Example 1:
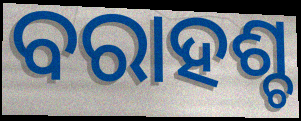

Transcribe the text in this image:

ବରାହଶ୍ଚ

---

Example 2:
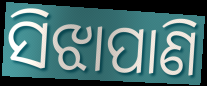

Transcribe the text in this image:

ସିଝାପାଣି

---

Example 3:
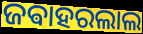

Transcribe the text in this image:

ଜଵାହରଲାଲ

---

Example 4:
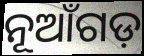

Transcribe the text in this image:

ନୂଆଁଗଡ଼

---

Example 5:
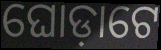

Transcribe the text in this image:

ଘୋଡ଼ାଟେ